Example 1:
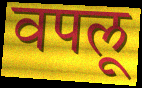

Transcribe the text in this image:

वपलू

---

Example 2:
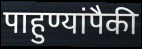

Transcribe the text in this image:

पाहुण्यांपैकी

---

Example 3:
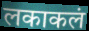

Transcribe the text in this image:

लकाकलं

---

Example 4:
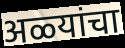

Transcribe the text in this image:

अळ्यांचा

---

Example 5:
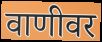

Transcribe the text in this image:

वाणीवर